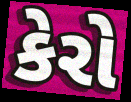
કેરો